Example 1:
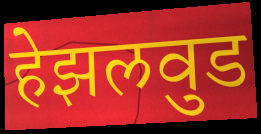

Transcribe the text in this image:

हेझलवुड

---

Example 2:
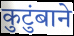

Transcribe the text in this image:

कुटुंबाने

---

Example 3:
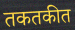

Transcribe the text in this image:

तकतकीत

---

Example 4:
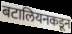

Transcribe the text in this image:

बटालियनकडून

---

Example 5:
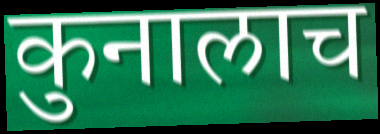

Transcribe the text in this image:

कुनालाच